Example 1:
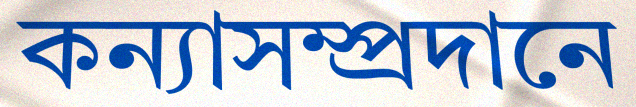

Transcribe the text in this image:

কন্যাসম্প্রদানে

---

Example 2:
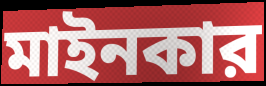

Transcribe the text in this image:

মাইনকার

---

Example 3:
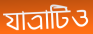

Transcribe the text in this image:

যাত্রাটিও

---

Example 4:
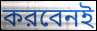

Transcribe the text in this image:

করবেনই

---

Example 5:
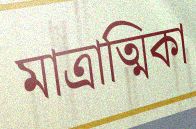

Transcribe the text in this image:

মাত্রাত্মিকা